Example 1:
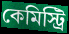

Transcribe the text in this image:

কেমিস্ট্রি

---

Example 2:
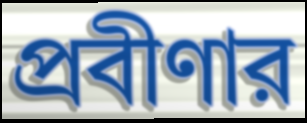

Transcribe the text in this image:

প্রবীণার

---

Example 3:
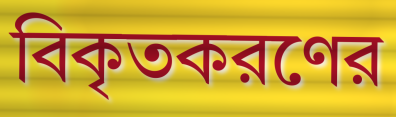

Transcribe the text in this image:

বিকৃতকরণের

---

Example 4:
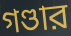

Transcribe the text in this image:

গণ্ডার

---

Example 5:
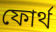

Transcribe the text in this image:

ফোর্থ